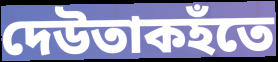
দেউতাকহঁতে